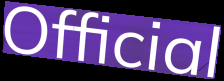
Official